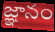
జ్ఞానం